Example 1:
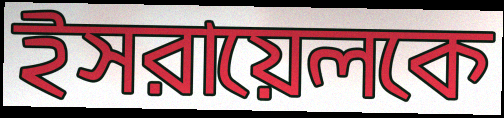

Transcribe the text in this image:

ইসরায়েলকে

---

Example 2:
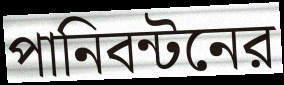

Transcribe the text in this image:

পানিবন্টনের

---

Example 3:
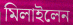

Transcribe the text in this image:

মিলাইলেন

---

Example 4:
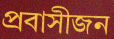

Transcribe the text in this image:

প্রবাসীজন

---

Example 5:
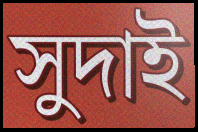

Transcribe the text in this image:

সুদাই